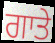
ਗਾਤੇ